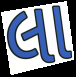
લા